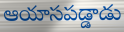
ఆయాసపడ్డాడు